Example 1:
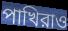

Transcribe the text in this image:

পাখিরাও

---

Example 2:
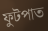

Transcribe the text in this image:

ফুটপাত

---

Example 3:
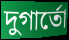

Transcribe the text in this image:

দুগার্তো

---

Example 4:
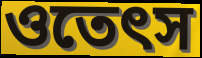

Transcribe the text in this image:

ওতেৎস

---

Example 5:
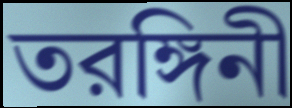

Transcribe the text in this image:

তরঙ্গিনী